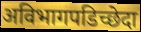
अविभागपडिच्छेदा